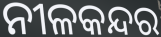
ନୀଳକନ୍ଦର